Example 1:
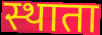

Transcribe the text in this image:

स्थाता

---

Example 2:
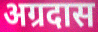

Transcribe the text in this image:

अग्रदास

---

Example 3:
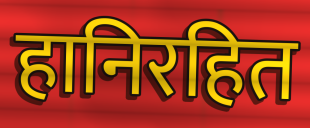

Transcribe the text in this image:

हानिरहित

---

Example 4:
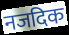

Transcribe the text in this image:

नजदिक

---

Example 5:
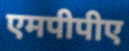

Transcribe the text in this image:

एमपीपीए